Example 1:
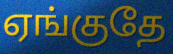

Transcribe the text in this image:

ஏங்குதே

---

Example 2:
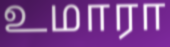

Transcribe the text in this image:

உமாரா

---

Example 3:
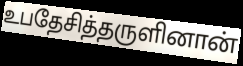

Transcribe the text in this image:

உபதேசித்தருளினான்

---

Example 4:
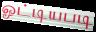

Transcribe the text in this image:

ஓட்டியபடி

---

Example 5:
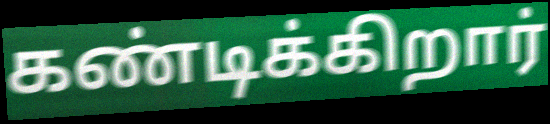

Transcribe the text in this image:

கண்டிக்கிறார்